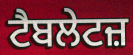
ਟੈਬਲੇਟਜ਼